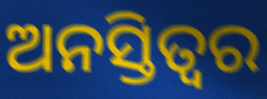
ଅନସ୍ତିତ୍ୱର